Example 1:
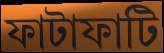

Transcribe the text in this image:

ফাটাফাটি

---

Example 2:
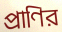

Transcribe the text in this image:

প্রাণির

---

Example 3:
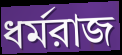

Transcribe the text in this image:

ধর্মরাজ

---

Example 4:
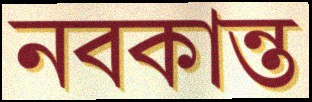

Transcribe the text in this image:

নবকান্ত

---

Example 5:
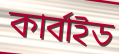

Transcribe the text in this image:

কার্বাইড